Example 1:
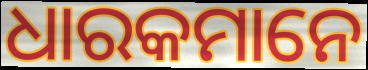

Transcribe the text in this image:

ଧାରକମାନେ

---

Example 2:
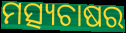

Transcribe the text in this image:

ମତ୍ସ୍ୟଚାଷର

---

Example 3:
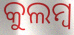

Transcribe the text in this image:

କୁଲମ୍ବ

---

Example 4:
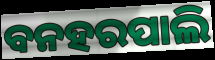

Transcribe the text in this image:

ବନହରପାଲି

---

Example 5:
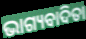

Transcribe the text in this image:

ଭାଗ୍ୟବାଦିତା